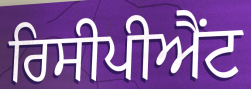
ਰਿਸੀਪੀਐਂਟ